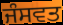
ਜੰਸਵਤ